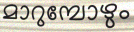
മാറുമ്പോഴും